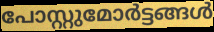
പോസ്റ്റുമോർട്ടങ്ങൾ